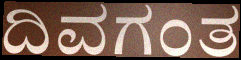
ದಿವಗಂತ